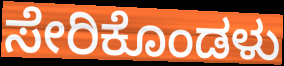
ಸೇರಿಕೊಂಡಳು